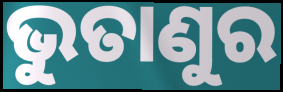
ଭୁତାଣୁର